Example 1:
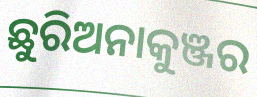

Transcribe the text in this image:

ଛୁରିଅନାକୁଞ୍ଜର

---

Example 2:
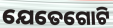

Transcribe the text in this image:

ଯେତେଗୋଟି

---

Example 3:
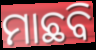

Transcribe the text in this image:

ମାଛବି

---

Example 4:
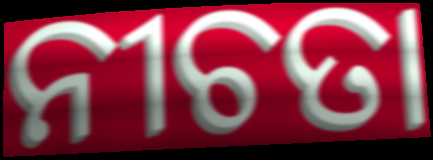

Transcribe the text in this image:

ନୀଚତା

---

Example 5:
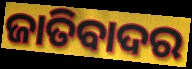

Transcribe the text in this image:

ଜାତିବାଦର